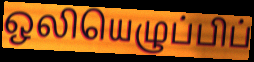
ஒலியெழுப்பிப்